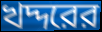
খদ্দরের